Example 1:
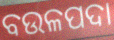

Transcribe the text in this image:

ବଉଳପଦା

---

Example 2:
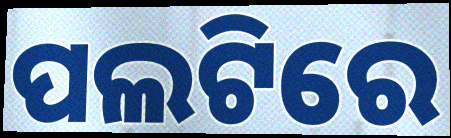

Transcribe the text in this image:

ପଲଟିରେ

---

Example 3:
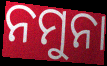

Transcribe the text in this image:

ନମୁନା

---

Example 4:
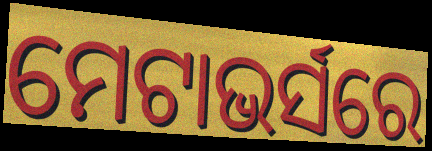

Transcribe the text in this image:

ମେଟାଭର୍ସରେ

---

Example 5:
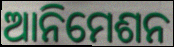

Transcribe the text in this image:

ଆନିମେଶନ